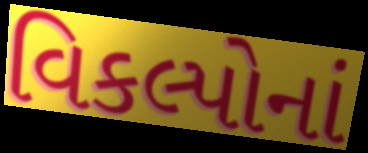
વિકલ્પોનાં